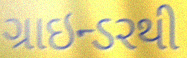
ગ્રાઇન્ડરથી